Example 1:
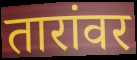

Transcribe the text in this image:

तारांवर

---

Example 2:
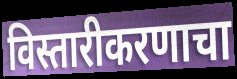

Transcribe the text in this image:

विस्तारीकरणाचा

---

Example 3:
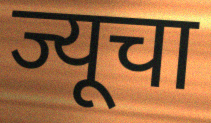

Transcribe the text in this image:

ज्यूचा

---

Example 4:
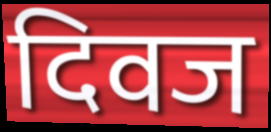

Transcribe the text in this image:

दिवज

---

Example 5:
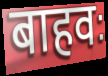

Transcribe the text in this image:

बाहवः